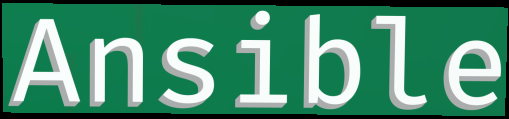
Ansible